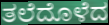
ತಲೆದೊಳೆದ